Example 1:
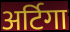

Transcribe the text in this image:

अर्टिगा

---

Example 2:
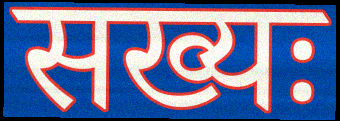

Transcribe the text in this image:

सख्यः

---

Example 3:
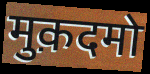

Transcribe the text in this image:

मुक़दमो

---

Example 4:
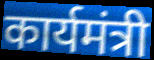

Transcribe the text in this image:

कार्यमंत्री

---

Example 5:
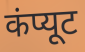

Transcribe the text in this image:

कंप्यूट